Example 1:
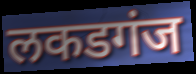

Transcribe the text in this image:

लकडगंज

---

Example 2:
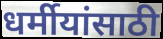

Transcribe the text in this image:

धर्मीयांसाठी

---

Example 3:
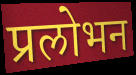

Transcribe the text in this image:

प्रलोभन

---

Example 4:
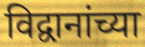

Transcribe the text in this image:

विद्वानांच्या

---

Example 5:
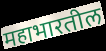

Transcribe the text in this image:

महाभारतील